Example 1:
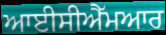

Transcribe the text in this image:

ਆਈਸੀਐੱਮਆਰ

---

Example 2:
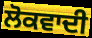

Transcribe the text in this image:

ਲੋਕਵਾਦੀ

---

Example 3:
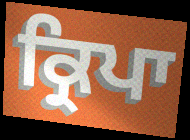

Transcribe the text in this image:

ਕ੍ਰਿਪਾ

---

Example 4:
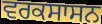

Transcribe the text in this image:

ਵਰਕਸਾਸਨ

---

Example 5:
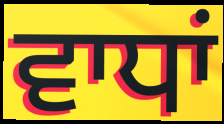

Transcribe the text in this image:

ਵਾਧਾਂ